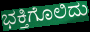
ಭಕ್ತಿಗೊಲಿದು